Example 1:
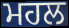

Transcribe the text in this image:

ਮਹਲ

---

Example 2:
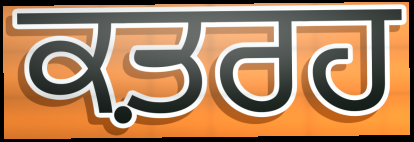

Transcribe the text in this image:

ਕ਼ਤਰਹ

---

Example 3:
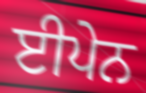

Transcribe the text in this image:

ਈਪੇਨ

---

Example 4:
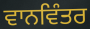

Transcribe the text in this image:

ਵਾਨਵਿੰਤਰ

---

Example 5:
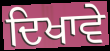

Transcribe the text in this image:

ਦਿਖਾਵੇ